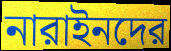
নারাইনদের